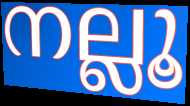
നല്ലൂ